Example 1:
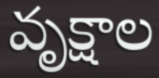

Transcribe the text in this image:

వృక్షాల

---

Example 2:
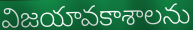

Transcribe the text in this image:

విజయావకాశాలను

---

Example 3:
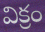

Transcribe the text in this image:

విక్రం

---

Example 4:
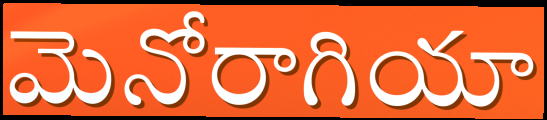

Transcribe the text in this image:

మెనోరాగియా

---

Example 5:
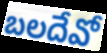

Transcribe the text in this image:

బలదేవో